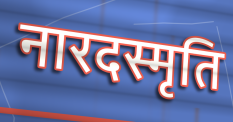
नारदस्मृति